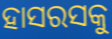
ହାସରସକୁ